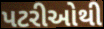
પટરીઓથી